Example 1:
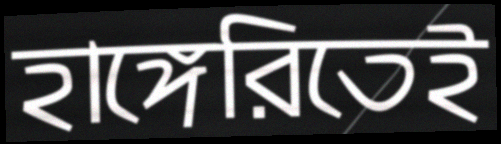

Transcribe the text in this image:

হাঙ্গেরিতেই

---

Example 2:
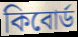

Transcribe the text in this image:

কিবোর্ড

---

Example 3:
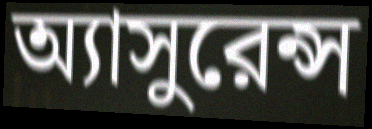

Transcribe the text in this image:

অ্যাসুরেন্স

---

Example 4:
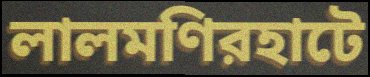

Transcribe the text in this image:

লালমণিরহাটে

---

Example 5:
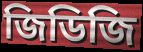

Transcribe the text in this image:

জিডিজি